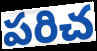
పరిచ